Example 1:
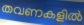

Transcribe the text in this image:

തവണകളിൽ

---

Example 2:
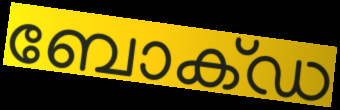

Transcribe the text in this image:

ബോക്ഡ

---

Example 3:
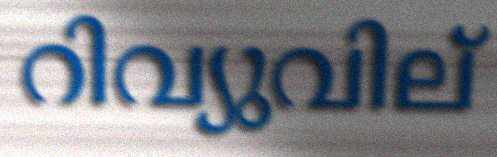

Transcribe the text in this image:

റിവ്യുവില്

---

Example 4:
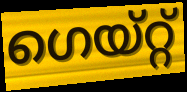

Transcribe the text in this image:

ഗെയ്റ്റ്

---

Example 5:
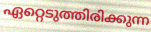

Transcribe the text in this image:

ഏറ്റെടുത്തിരിക്കുന്ന